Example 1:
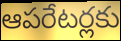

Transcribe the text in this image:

ఆపరేటర్లకు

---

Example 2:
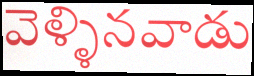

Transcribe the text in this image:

వెళ్ళినవాడు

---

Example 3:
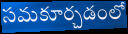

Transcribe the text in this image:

సమకూర్చడంలో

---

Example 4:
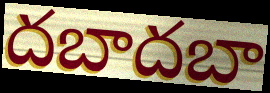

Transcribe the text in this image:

దబాదబా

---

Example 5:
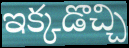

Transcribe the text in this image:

ఇక్కడొచ్చి